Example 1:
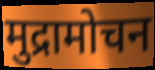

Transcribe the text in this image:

मुद्रामोचन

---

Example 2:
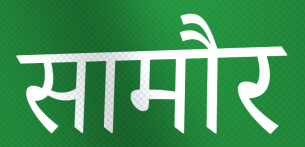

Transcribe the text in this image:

सामौर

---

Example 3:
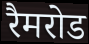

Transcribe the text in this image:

रैमरोड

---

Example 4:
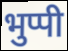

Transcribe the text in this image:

भुप्पी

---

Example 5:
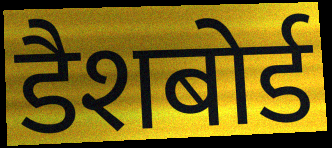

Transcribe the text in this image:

डैशबोर्ड